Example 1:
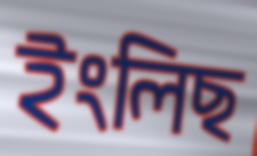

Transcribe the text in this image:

ইংলিছ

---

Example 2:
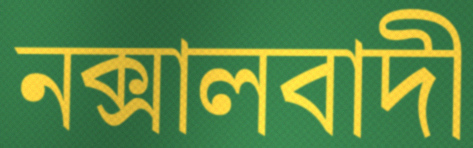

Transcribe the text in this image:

নক্সালবাদী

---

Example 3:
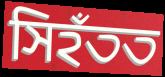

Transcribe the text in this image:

সিহঁতত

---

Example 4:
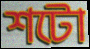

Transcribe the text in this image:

শটো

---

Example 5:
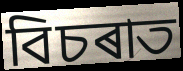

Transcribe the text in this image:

বিচৰাত